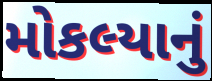
મોકલ્યાનું